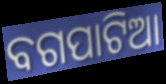
ବଗପାଟିଆ